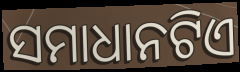
ସମାଧାନଟିଏ